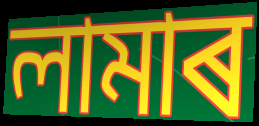
লামাৰ